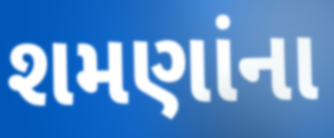
શમણાંના